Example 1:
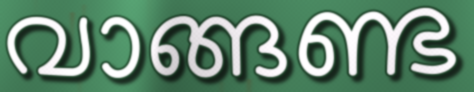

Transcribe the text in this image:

വാങ്ങണ്ട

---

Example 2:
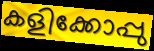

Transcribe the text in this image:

കളിക്കോപ്പു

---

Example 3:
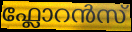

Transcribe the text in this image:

ഫ്ലോറൻസ്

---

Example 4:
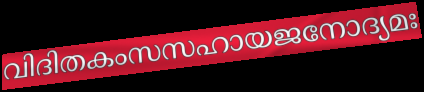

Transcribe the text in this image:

വിദിതകംസസഹായജനോദ്യമഃ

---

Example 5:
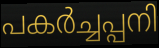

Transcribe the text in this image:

പകർച്ചപ്പനി